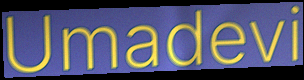
Umadevi